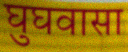
घुघवासा